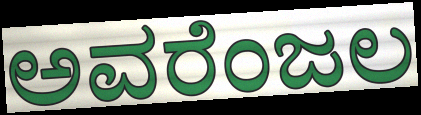
ಅವರೆಂಜಲ